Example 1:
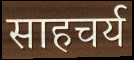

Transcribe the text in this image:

साहचर्य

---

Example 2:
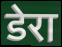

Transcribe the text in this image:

डेरा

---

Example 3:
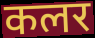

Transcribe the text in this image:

कलर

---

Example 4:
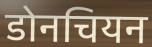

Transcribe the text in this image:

डोनचियन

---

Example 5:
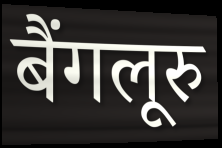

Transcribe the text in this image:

बैंगलूरु